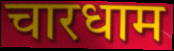
चारधाम